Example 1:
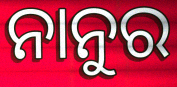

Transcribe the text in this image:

ନାନୁର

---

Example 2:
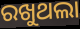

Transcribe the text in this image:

ରଖୁଥଲା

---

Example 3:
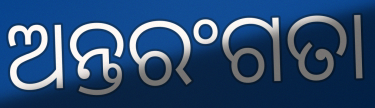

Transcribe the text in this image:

ଅନ୍ତରଂଗତା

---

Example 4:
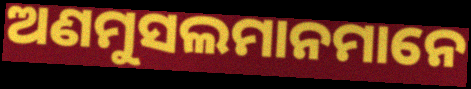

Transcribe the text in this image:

ଅଣମୁସଲମାନମାନେ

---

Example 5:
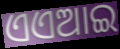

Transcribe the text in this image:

ଏଏଆଇ